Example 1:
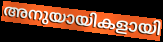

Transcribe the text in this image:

അനുയായികളായി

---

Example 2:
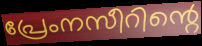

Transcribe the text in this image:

പ്രേംനസീറിന്റെ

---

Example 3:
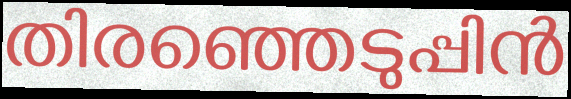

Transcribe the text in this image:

തിരഞ്ഞെടുപ്പിൻ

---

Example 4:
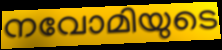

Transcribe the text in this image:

നവോമിയുടെ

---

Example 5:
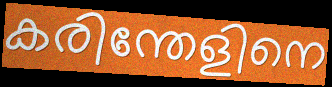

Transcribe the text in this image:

കരിന്തേളിനെ